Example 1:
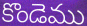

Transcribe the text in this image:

కొండెము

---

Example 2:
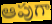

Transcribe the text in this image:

ఆపుగా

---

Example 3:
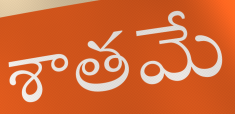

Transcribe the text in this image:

శాతమే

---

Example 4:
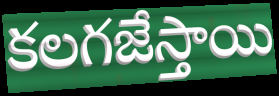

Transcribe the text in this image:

కలగజేస్తాయి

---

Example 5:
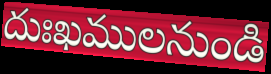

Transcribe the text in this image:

దుఃఖములనుండి